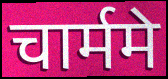
चार्ममे